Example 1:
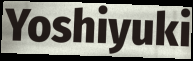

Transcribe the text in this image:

Yoshiyuki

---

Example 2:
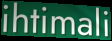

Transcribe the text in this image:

ihtimali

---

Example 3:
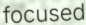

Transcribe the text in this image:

focused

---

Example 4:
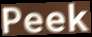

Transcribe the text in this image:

Peek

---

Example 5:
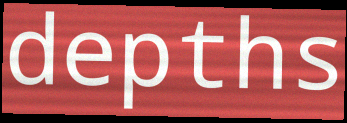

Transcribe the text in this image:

depths